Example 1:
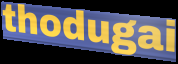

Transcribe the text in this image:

thodugai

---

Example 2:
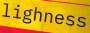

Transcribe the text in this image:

lighness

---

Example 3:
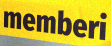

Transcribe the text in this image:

memberi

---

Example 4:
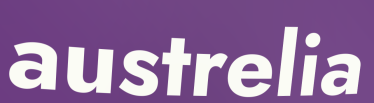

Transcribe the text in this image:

austrelia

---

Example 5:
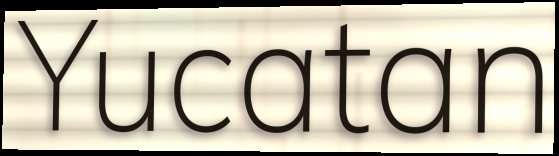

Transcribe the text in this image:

Yucatan